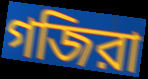
গজিরা